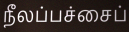
நீலப்பச்சைப்